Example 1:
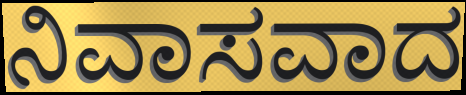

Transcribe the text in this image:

ನಿವಾಸವಾದ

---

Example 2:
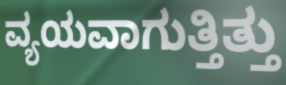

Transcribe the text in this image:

ವ್ಯಯವಾಗುತ್ತಿತ್ತು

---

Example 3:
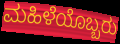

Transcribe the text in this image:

ಮಹಿಳೆಯೊಬ್ಬರು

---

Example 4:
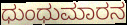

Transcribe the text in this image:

ಧುಂಧುಮಾರನ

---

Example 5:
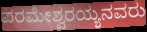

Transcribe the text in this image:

ಪರಮೇಶ್ವರಯ್ಯನವರು